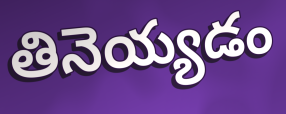
తినెయ్యడం